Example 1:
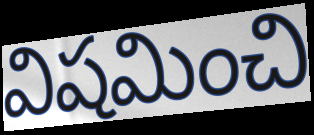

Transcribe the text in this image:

విషమించి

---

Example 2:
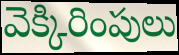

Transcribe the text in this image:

వెక్కిరింపులు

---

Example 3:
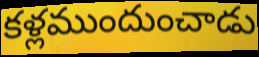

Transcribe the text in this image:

కళ్లముందుంచాడు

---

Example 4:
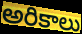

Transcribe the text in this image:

అరికాలు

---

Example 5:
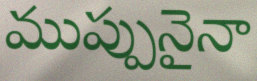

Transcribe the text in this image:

ముప్పునైనా